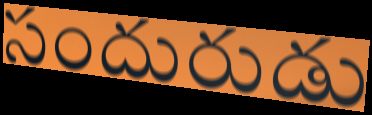
సందురుడు